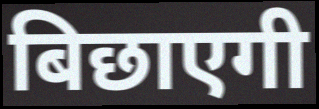
बिछाएगी